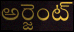
అర్జెంట్